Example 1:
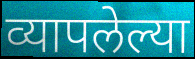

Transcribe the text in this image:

व्यापलेल्या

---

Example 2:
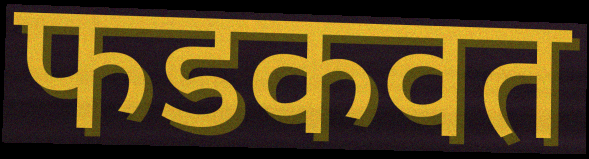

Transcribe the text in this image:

फडकवत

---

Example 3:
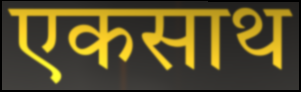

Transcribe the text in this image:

एकसाथ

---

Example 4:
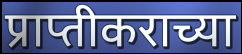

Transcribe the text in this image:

प्राप्तीकराच्या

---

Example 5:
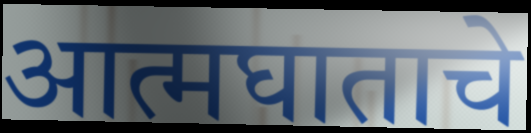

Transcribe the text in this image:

आत्मघाताचे